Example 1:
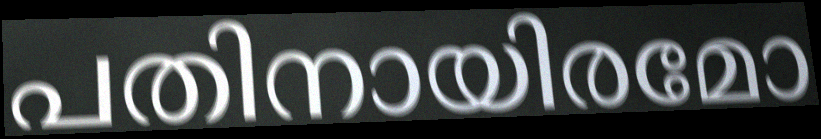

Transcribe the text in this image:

പതിനായിരമോ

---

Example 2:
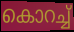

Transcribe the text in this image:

കൊറച്ച്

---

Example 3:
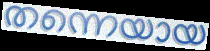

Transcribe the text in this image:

തന്നെയായ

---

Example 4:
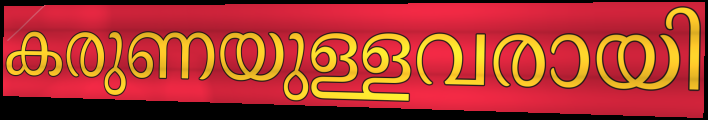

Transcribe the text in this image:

കരുണയുള്ളവരായി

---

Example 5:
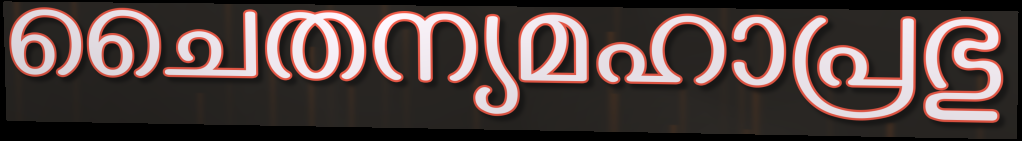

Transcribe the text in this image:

ചൈതന്യമഹാപ്രഭു